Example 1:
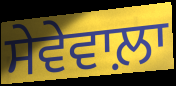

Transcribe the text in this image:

ਸੇਵੇਵਾਲ਼ਾ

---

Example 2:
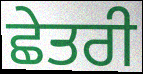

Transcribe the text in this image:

ਛੇਤਰੀ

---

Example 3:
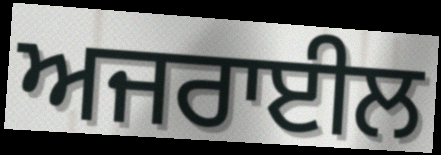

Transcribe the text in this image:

ਅਜਰਾਈਲ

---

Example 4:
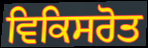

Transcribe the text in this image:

ਵਿਕਿਸਰੋਤ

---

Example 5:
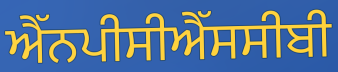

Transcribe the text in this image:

ਐੱਨਪੀਸੀਐੱਸਸੀਬੀ